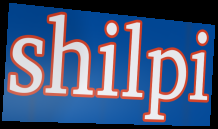
shilpi